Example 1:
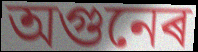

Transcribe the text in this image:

অগুনেৰ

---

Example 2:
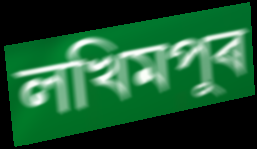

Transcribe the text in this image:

লখিমপুৰ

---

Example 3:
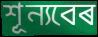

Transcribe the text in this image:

শূন্যবেৰ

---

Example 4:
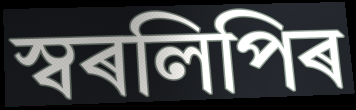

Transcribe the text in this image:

স্বৰলিপিৰ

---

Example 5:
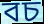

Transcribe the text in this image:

বচ